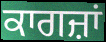
ਕਾਗਜ਼ਾਂ